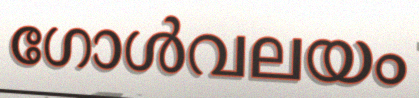
ഗോൾവലയം